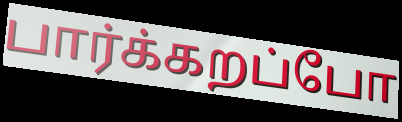
பார்க்கறப்போ